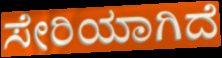
ಸೇರಿಯಾಗಿದೆ